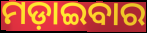
ମଡ଼ାଇବାର